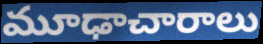
మూఢాచారాలు